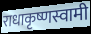
राधाकृष्णस्वामी